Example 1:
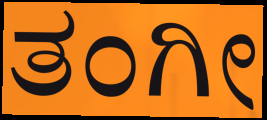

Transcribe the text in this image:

ತಂಗೀ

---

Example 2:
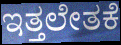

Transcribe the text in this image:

ಇತ್ತಲೇತಕೆ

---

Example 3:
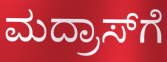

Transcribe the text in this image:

ಮದ್ರಾಸ್‍ಗೆ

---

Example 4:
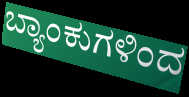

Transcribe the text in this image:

ಬ್ಯಾಂಕುಗಳಿಂದ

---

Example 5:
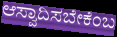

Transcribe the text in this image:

ಆಸ್ವಾದಿಸಬೇಕೆಂಬ